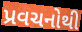
પ્રવચનોથી